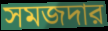
সমজদার